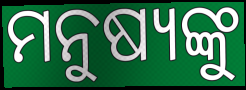
ମନୁଷ୍ୟଙ୍କୁ